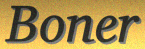
Boner